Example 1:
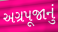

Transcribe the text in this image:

અગ્રપૂજાનું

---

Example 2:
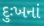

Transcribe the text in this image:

દુઃખનાં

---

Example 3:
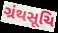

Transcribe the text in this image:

ગ્રંથસૂચિ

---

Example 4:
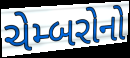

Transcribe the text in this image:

ચેમ્બરોનો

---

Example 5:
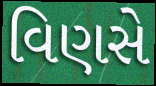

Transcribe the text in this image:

વિણસે